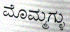
ಮೊಮ್ಮಗ್ಳು